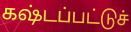
கஷ்டப்பட்டுச்